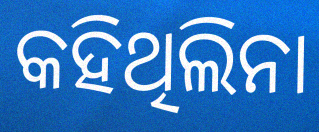
କହିଥିଲିନା